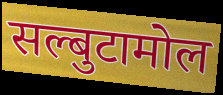
सल्बुटामोल